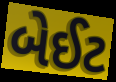
બેઈટ